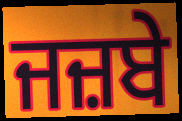
ਜਜ਼ਬੇ